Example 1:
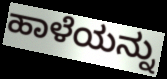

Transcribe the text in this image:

ಹಾಳೆಯನ್ನು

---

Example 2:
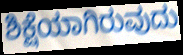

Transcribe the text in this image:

ಶಿಕ್ಷೆಯಾಗಿರುವುದು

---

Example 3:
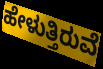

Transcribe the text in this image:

ಹೇಳುತ್ತಿರುವೆ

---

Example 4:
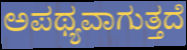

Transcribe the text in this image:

ಅಪಥ್ಯವಾಗುತ್ತದೆ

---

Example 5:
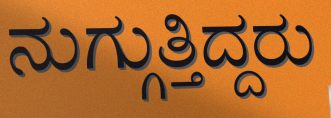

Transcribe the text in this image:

ನುಗ್ಗುತ್ತಿದ್ದರು